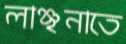
লাঞ্ছনাতে